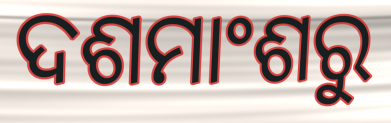
ଦଶମାଂଶରୁ